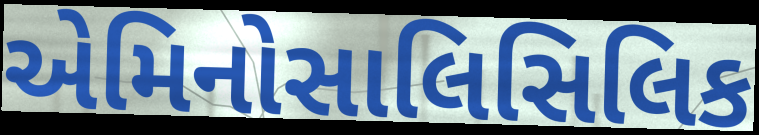
એમિનોસાલિસિલિક